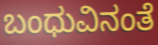
ಬಂಧುವಿನಂತೆ